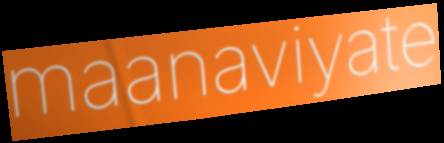
maanaviyate